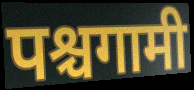
पश्चगामी